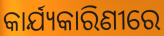
କାର୍ଯ୍ୟକାରିଣୀରେ